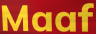
Maaf